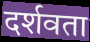
दर्शवता